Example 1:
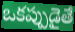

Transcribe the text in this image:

ఒకప్పుడైతే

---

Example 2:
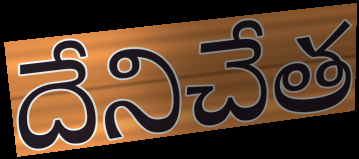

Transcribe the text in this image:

దేనిచేత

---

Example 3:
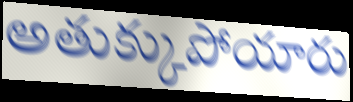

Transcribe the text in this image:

అతుక్కుపోయారు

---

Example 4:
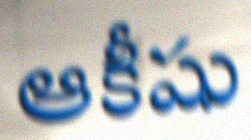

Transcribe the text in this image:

ఆకీషు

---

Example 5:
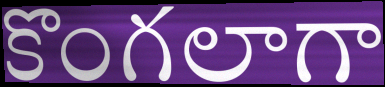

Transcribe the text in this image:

కొంగలాగా